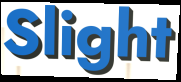
Slight